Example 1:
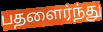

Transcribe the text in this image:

பதளைர்ந்து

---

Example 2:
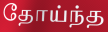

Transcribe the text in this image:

தோய்ந்த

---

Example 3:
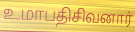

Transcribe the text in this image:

உமாபதிசிவனார்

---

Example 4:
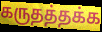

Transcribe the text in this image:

கருதத்தக்க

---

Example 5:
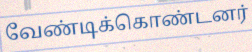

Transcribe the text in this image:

வேண்டிக்கொண்டனர்